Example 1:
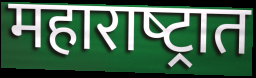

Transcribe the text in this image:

महाराष्‍ट्रात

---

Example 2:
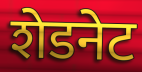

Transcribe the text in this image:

शेडनेट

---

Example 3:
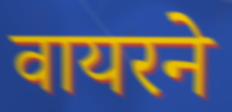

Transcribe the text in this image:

वायरने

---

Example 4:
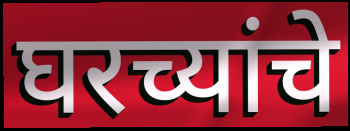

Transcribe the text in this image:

घरच्यांचे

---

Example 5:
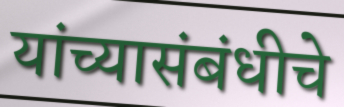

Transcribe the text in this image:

यांच्यासंबंधीचे